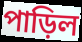
পাড়িল